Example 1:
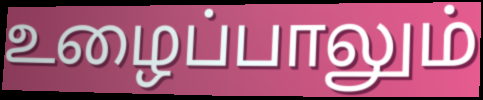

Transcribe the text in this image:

உழைப்பாலும்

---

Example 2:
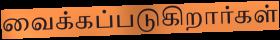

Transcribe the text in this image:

வைக்கப்படுகிறார்கள்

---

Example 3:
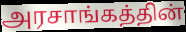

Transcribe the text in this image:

அரசாங்கத்தின்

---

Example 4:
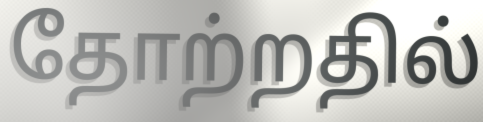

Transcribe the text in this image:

தோற்றதில்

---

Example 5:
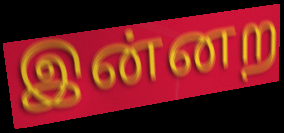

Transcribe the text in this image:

இன்னற